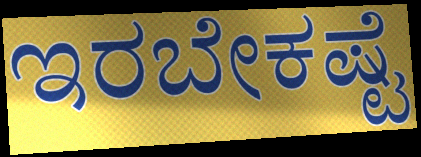
ಇರಬೇಕಷ್ಟೆ